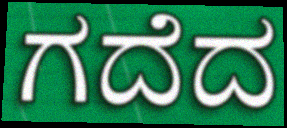
ಗದೆದ